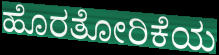
ಹೊರತೋರಿಕೆಯ